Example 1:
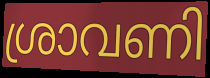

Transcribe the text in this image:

ശ്രാവണി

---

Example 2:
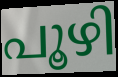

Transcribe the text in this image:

പൂഴി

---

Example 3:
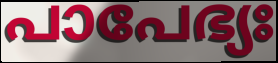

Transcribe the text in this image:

പാപേഭ്യഃ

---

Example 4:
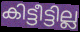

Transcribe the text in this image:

കിട്ടീട്ടില്ല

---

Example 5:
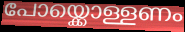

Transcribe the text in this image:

പോയ്ക്കൊള്ളണം